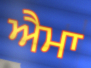
ਐਮਾ